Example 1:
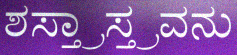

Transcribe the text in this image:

ಶಸ್ತ್ರಾಸ್ತ್ರವನು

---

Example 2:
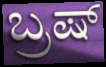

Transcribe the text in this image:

ಬ್ರಷ್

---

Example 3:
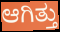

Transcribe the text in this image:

ಆಗಿತ್ತು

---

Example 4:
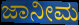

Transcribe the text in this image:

ಜಾನೀಮ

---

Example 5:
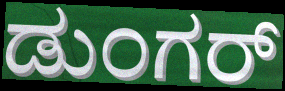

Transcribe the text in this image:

ಡುಂಗರ್